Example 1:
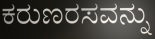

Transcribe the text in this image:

ಕರುಣರಸವನ್ನು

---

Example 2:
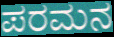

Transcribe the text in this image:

ಪರಮನ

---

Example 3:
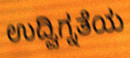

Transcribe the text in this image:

ಉದ್ವಿಗ್ನತೆಯ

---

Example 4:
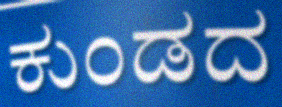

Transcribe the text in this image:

ಕುಂಡದ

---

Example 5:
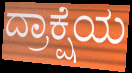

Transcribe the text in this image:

ದ್ರಾಕ್ಷೆಯ